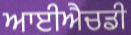
ਆਈਐਚਡੀ